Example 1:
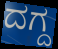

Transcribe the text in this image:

ದಗ್ದ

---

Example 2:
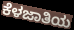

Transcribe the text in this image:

ಕೆಳಜಾತಿಯ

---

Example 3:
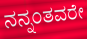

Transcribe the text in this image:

ನನ್ನಂತವರೇ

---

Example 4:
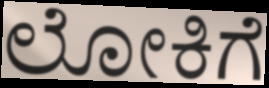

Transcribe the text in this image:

ಲೋಕಿಗೆ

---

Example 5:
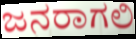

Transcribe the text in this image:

ಜನರಾಗಲಿ